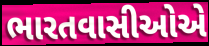
ભારતવાસીઓએ